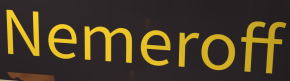
Nemeroff